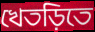
খেতড়িতে